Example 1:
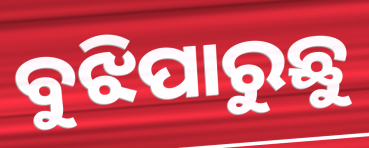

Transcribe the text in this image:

ବୁଝିପାରୁଛୁ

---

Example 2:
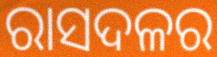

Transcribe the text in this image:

ରାସଦଳର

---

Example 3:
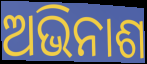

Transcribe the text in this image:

ଅଭିନାଶ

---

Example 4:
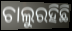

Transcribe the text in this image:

ଚାଲୁରହିଛି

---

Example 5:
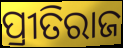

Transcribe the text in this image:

ପ୍ରୀତିରାଜ